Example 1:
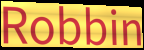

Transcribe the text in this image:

Robbin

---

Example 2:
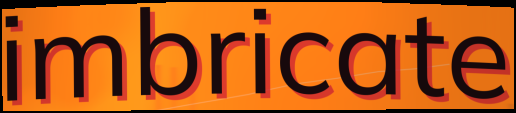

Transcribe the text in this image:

imbricate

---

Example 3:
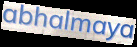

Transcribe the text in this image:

abhalmaya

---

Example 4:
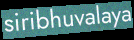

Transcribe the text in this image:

siribhuvalaya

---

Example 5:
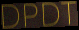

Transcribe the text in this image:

DPDT